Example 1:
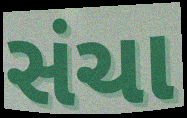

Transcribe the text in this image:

સંચા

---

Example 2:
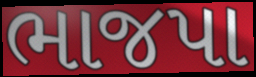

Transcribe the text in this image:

ભાજપા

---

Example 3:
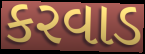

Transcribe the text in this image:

કરવાડ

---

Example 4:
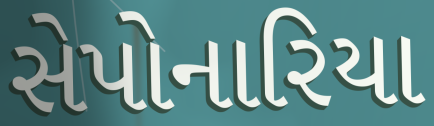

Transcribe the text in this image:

સેપોનારિયા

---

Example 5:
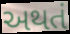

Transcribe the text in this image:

અથતં